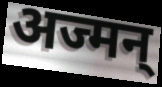
अज्मन्